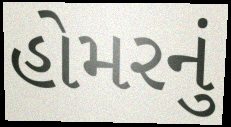
હોમરનું